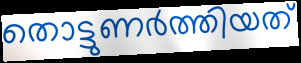
തൊട്ടുണർത്തിയത്